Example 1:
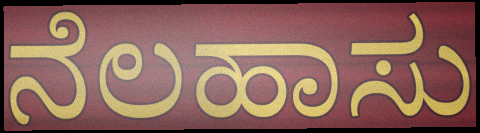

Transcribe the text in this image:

ನೆಲಹಾಸು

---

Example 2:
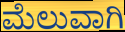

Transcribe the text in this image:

ಮೆಲುವಾಗಿ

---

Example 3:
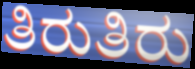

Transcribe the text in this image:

ತಿರುತಿರು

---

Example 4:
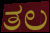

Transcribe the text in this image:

ತಲ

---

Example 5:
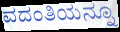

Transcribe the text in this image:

ವದಂತಿಯನ್ನೂ